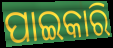
ପାଇକାରି